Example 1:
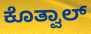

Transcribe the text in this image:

ಕೊತ್ವಾಲ್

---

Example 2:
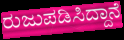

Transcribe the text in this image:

ರುಜುಪಡಿಸಿದ್ದಾನೆ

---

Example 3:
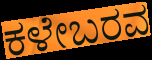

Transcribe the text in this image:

ಕಳೇಬರವ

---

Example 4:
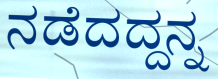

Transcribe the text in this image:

ನಡೆದದ್ದನ್ನ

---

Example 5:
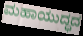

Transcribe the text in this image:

ಮಹಾಯುದ್ಧದ